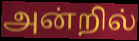
அன்றில்